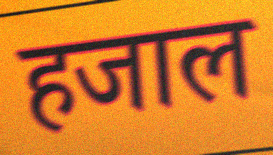
हजाल